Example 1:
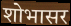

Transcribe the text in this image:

शोभासर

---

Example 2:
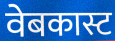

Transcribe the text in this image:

वेबकास्ट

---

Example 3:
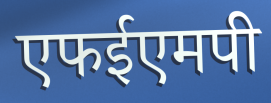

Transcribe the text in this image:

एफईएमपी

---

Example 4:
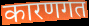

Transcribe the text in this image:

कारणगत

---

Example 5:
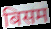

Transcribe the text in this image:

बिसम